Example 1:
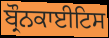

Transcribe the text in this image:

ਬ੍ਰੌਨਕਾਈਟਿਸ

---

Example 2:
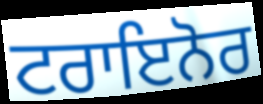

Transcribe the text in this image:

ਟਰਾਇਨੋਰ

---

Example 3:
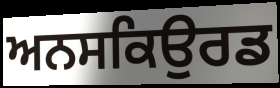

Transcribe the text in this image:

ਅਨਸਕਿਉਰਡ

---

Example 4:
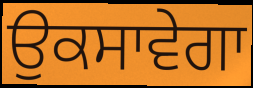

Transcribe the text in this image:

ਉਕਸਾਵੇਗਾ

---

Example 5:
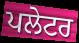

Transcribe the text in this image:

ਪਲੇਟਰ